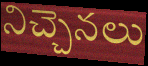
నిచ్చెనలు